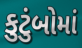
કુટુંબોમાં